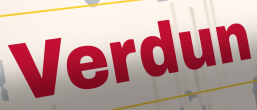
Verdun